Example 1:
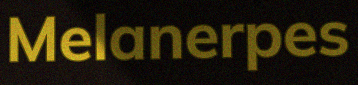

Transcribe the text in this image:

Melanerpes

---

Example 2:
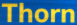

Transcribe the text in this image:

Thorn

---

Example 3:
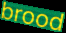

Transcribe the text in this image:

brood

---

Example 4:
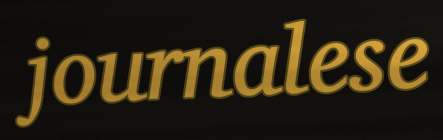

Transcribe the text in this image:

journalese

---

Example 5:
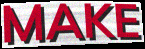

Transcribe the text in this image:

MAKE